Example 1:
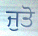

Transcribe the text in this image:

ਜੁਤੋ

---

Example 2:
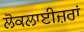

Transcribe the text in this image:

ਲੋਕਲਾਈਜ਼ਰਾਂ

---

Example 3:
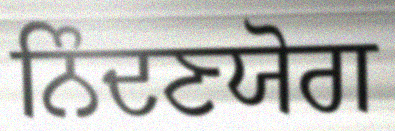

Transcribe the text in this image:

ਨਿੰਦਣਯੋਗ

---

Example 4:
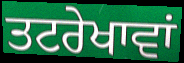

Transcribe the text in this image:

ਤਟਰੇਖਾਵਾਂ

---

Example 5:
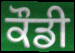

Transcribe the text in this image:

ਕੌਡੀ